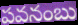
పవనంబు